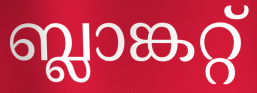
ബ്ലാങ്കറ്റ്